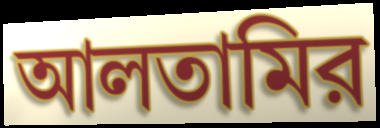
আলতামির